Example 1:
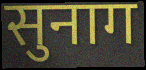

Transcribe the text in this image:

सुनाग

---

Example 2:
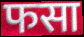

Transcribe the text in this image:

फसा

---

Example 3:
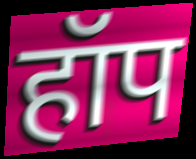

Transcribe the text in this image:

हॉप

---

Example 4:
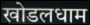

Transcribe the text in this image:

खोडलधाम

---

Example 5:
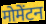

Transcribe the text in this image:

मोमेंटन